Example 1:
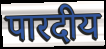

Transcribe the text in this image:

पारदीय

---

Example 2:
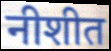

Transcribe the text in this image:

नीशीत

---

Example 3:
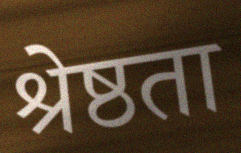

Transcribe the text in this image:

श्रेष्ठता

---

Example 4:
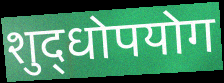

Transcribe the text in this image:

शुद्धोपयोग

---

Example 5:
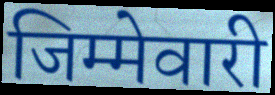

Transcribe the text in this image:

जिम्मेवारी